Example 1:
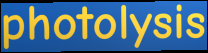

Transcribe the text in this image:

photolysis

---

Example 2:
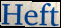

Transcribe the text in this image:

Heft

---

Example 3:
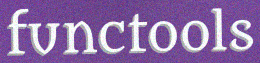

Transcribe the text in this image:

functools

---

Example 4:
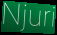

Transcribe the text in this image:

Njuri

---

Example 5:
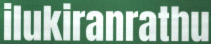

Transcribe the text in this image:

ilukiranrathu